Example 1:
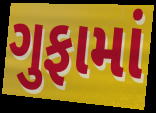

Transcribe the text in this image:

ગુફામાં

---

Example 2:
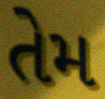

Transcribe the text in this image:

તેમ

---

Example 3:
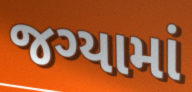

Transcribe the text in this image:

જગ્યામાં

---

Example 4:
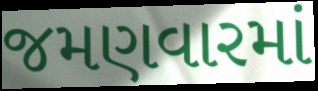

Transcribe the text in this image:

જમણવારમાં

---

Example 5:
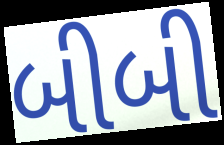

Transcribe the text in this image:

બીબી